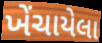
ખેંચાયેલા